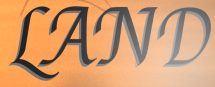
LAND